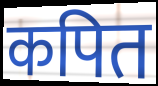
कपित